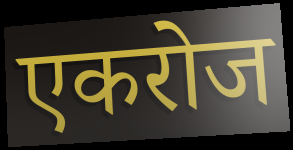
एकरोज